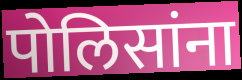
पोलिसांना